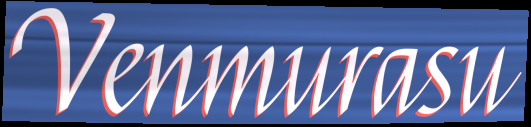
Venmurasu